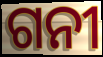
ଗନୀ